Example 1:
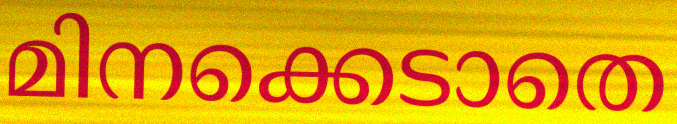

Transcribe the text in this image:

മിനക്കെടാതെ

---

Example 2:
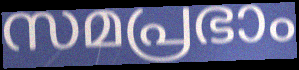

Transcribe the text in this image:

സമപ്രഭാം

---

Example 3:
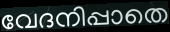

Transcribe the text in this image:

വേദനിപ്പാതെ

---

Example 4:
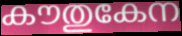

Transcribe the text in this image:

കൗതുകേന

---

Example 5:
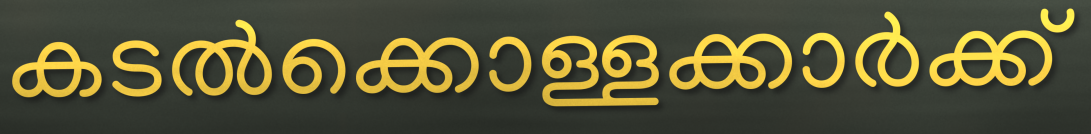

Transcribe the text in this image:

കടൽക്കൊള്ളക്കാർക്ക്